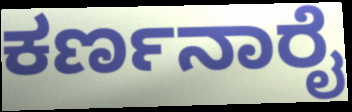
ಕರ್ಣನಾರೈ